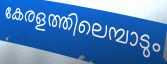
കേരളത്തിലെമ്പാടും